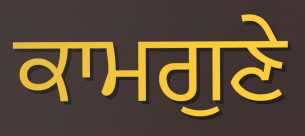
ਕਾਮਗੁਣੇ